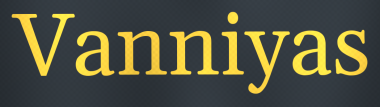
Vanniyas